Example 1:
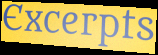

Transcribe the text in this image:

Excerpts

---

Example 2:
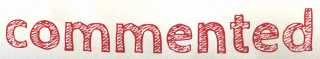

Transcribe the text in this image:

commented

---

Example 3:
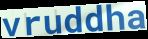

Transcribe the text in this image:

vruddha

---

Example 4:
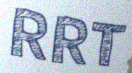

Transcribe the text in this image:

RRT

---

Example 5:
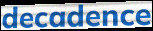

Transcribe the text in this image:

decadence